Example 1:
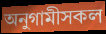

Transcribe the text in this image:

অনুগামীসকল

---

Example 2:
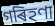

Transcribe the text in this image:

গৰিহণা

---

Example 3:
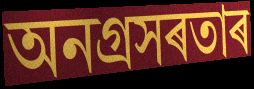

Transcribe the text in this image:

অনগ্ৰসৰতাৰ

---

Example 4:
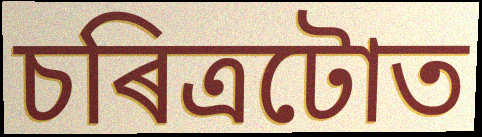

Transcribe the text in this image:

চৰিত্ৰটোত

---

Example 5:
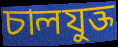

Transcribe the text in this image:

চালযুক্ত